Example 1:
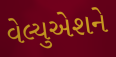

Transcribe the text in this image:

વેલ્યુએશને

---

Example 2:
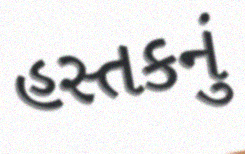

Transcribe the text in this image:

હસ્તકનું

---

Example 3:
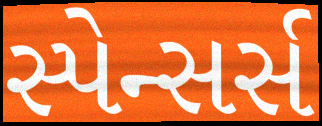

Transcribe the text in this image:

સ્પેન્સર્સ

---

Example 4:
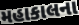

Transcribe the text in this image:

મહાકાલના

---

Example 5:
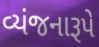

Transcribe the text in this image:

વ્યંજનારૂપે